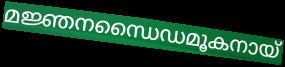
മജ്ഞനന്ധൈഡമൂകനായ്